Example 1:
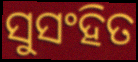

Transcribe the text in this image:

ସୁସଂହିତ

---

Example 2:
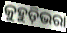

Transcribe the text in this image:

କୁହୁଡ଼ିଭରା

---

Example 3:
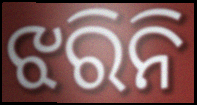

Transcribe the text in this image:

ଝରିନି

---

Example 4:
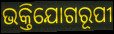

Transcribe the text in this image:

ଭକ୍ତିଯୋଗରୂପୀ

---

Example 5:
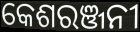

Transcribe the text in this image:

କେଶରଞ୍ଜନୀ